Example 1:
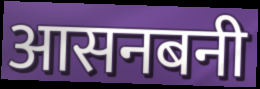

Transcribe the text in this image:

आसनबनी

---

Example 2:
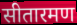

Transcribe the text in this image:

सीतारमण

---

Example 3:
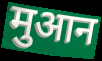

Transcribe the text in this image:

मुआन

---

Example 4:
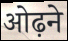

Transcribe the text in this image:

ओढ़ने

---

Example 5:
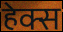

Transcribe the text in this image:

हेक्स